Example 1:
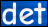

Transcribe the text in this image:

det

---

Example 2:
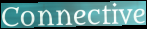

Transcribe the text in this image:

Connective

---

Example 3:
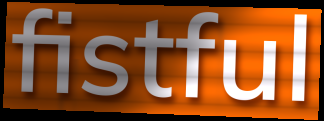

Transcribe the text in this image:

fistful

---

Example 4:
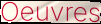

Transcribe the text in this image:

Oeuvres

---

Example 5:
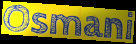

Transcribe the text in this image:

Osmani